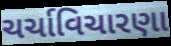
ચર્ચાવિચારણા